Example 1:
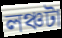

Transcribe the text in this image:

লঞ্চটা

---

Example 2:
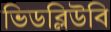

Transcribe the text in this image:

ভিডব্লিউবি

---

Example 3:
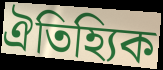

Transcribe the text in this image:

ঐতিহ্যিক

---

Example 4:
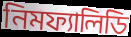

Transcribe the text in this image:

নিমফ্যালিডি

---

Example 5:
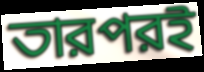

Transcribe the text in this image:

তারপরই